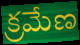
క్రమేణ